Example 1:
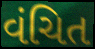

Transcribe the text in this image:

વંચિત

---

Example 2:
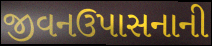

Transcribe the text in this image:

જીવનઉપાસનાની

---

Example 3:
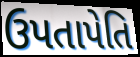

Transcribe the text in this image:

ઉપતાપેતિ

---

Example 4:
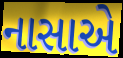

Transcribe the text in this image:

નાસાએ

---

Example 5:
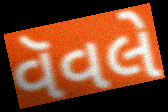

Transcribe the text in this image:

વૅવલે